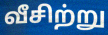
வீசிற்று